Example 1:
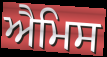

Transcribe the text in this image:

ਐਮਿਸ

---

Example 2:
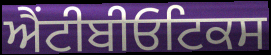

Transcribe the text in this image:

ਐਂਟੀਬੀਓਟਿਕਸ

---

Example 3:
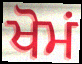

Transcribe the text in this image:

ਖੋਮਂ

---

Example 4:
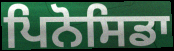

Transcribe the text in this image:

ਪਿਨੋਸਿਡਾ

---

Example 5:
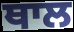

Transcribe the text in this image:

ਥਾਲ